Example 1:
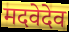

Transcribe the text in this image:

मदवेदेव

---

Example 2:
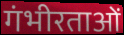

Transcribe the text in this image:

गंभीरताओं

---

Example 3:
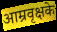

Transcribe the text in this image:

आम्रवृक्षके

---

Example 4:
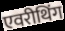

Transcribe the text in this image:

एवरीथिंग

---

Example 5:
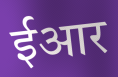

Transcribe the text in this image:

ईआर